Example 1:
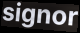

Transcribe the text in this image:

signor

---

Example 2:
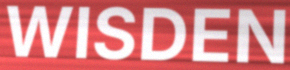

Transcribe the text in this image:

WISDEN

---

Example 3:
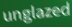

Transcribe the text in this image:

unglazed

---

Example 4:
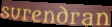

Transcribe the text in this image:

surendran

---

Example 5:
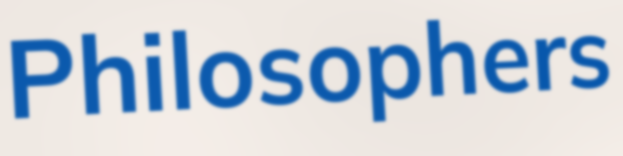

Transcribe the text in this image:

Philosophers